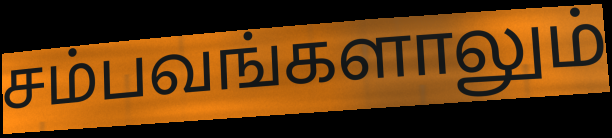
சம்பவங்களாலும்